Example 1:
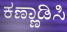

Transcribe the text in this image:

ಕಣ್ಣಾಡಿಸಿ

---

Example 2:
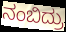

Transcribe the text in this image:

ನಂಬಿದ್ರು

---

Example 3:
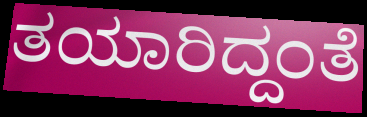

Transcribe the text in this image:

ತಯಾರಿದ್ದಂತೆ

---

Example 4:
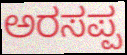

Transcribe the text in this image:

ಅರಸಪ್ಪ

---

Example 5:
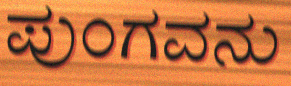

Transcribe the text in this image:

ಪುಂಗವನು